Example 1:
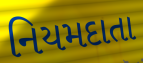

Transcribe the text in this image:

નિયમદાતા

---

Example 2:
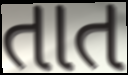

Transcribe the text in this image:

તાત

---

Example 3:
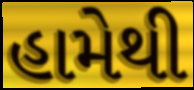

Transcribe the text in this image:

હામેથી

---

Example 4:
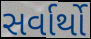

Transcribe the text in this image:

સર્વાર્થો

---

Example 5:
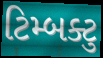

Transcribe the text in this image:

ટિમ્બક્ટુ